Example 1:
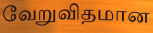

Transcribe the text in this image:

வேறுவிதமான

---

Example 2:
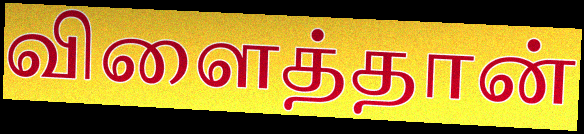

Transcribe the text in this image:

விளைத்தான்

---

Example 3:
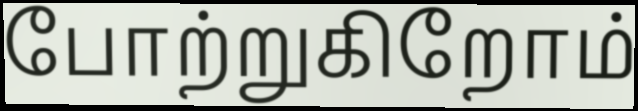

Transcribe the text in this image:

போற்றுகிறோம்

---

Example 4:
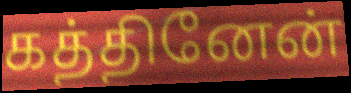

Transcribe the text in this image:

கத்தினேன்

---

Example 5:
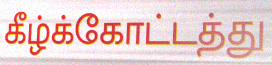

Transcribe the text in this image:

கீழ்க்கோட்டத்து